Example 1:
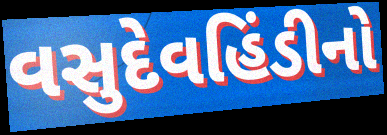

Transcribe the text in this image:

વસુદેવહિંડીનો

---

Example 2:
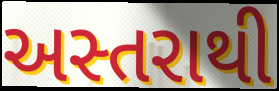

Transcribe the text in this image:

અસ્તરાથી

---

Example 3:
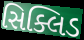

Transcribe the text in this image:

સિક્લિડ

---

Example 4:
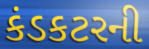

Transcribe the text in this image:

કંડકટરની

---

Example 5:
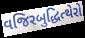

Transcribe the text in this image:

વજિરબુદ્ધિત્થેરો